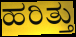
ಹರಿತ್ತು